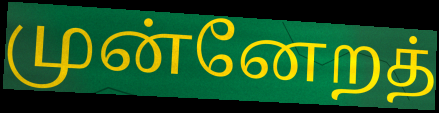
முன்னேறத்